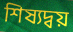
শিষ্যদ্বয়